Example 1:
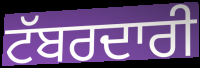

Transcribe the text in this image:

ਟੱਬਰਦਾਰੀ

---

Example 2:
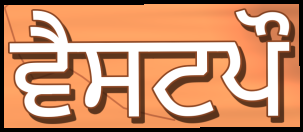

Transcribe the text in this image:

ਵੈਸਟਪੌ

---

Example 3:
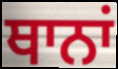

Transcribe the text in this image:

ਥਾਨਾਂ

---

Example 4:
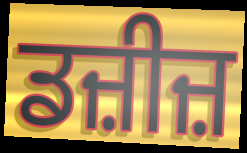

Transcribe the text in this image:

ਡਜ਼ੀਜ਼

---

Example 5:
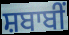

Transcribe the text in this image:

ਸ਼ਬਾਬੀਂ